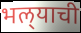
भल्याची